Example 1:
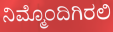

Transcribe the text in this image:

ನಿಮ್ಮೊಂದಿಗಿರಲಿ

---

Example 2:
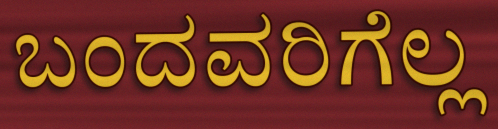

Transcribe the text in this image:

ಬಂದವರಿಗೆಲ್ಲ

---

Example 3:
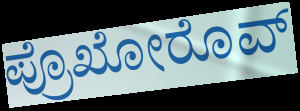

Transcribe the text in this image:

ಪ್ರೊಖೋರೊವ್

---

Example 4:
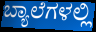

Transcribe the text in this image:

ಬ್ಯಾಲೆಗಳಲ್ಲಿ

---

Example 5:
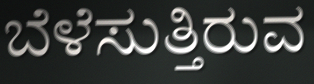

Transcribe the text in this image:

ಬೆಳೆಸುತ್ತಿರುವ